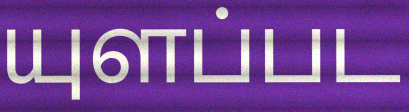
யுளப்பட